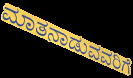
ಮಾತನಾಡುವವರಿಗೆ